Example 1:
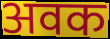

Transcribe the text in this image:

अवक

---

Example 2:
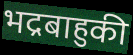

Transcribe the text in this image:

भद्रबाहुकी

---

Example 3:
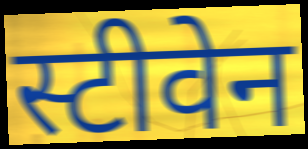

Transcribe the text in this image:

स्टीवेन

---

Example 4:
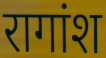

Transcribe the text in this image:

रागांश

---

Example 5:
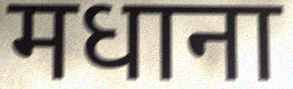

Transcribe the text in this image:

मधाना